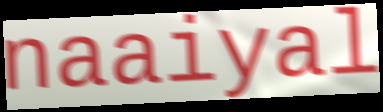
naaiyal